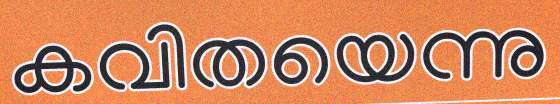
കവിതയെന്നു